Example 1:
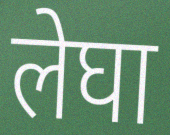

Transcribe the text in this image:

लेघा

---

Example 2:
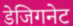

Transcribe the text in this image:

डेजिगनेट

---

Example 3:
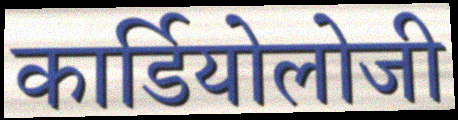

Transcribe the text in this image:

कार्डियोलोजी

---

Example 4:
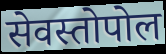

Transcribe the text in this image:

सेवस्तोपोल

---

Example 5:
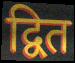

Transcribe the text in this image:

द्वित